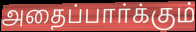
அதைப்பார்க்கும்